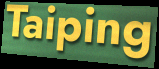
Taiping